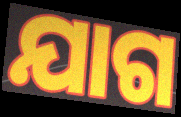
ଯାଗ